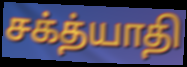
சக்த்யாதி